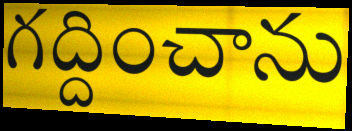
గద్దించాను